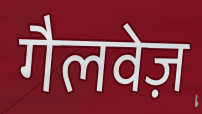
गैलवेज़